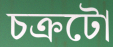
চক্ৰটো